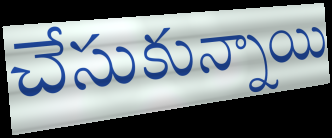
చేసుకున్నాయి